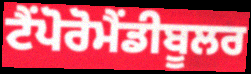
ਟੈਂਪੋਰੋਮੈਂਡੀਬੂਲਰ